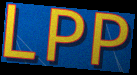
LPP